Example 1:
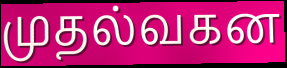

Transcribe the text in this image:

முதல்வகன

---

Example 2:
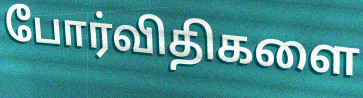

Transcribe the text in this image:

போர்விதிகளை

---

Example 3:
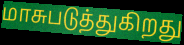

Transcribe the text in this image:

மாசுபடுத்துகிறது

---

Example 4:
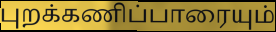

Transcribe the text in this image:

புறக்கணிப்பாரையும்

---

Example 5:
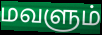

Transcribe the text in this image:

மவளும்